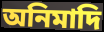
অনিমাদি